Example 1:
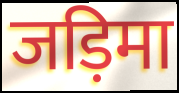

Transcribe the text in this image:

जड़िमा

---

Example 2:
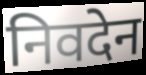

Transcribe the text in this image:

निवदेन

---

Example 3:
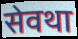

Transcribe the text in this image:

सेवथा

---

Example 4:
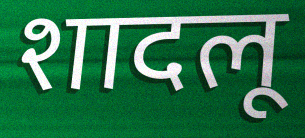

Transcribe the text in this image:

शादलू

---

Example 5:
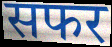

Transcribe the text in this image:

सफर